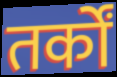
तर्कों